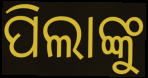
ପିଲାଙ୍କୁ